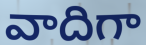
వాదిగా